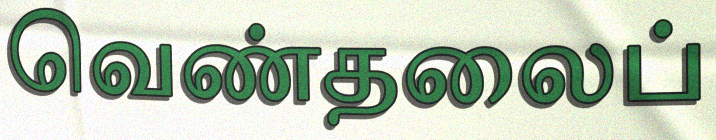
வெண்தலைப்